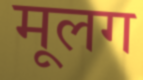
मूलग